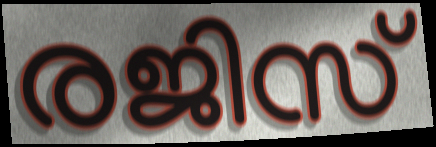
രജിസ്